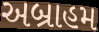
અબ્રાહમ